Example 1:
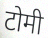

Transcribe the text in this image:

टोमी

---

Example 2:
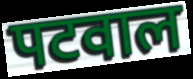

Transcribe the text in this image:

पटवाल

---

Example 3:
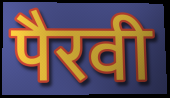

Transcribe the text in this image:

पैरवी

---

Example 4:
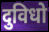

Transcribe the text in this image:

दुविधो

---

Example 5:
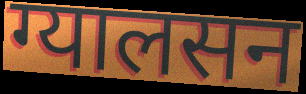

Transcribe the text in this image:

ग्यालसन